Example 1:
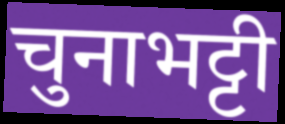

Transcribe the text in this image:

चुनाभट्टी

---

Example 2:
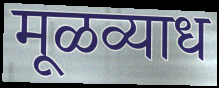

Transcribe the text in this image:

मूळव्याध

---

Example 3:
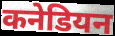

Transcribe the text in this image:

कनेडियन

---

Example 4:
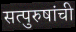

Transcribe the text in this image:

सत्पुरुषांची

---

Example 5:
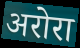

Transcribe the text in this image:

अरोरा